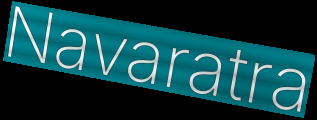
Navaratra